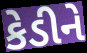
કેડીને